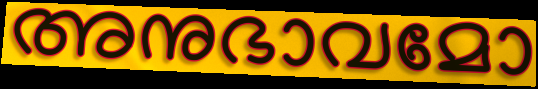
അനുഭാവമോ